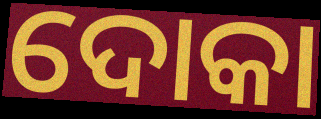
ଦୋକା